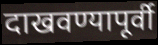
दाखवण्यापूर्वी